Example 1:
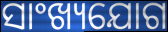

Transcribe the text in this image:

ସାଂଖ୍ୟଯୋଗ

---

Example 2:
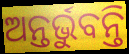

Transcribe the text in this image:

ଅନ୍ତର୍ଭୁବନ୍ତି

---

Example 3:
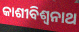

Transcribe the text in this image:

କାଶୀବିଶ୍ଵନାଥ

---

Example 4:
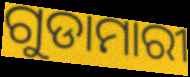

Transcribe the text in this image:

ଗୁଡାମାରୀ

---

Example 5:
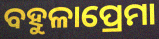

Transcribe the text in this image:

ବହୁଳାପ୍ରେମା